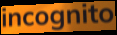
incognito